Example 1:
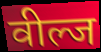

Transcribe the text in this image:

वील्ज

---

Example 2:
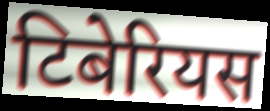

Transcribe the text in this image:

टिबेरियस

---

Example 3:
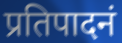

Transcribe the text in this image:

प्रतिपादनं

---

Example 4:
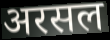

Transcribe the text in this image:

अरसल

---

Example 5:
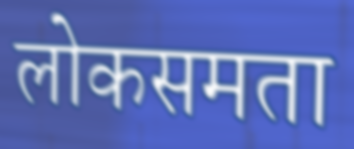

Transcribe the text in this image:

लोकसमता